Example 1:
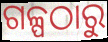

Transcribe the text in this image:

ଗଳ୍ପଠାରୁ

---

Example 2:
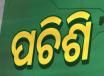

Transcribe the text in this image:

ପଚିଶି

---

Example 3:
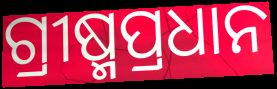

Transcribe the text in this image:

ଗ୍ରୀଷ୍ମପ୍ରଧାନ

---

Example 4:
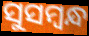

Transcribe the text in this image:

ସୁସମ୍ବନ୍ଧ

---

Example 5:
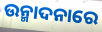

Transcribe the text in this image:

ଉନ୍ମାଦନାରେ